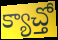
క్యాచ్తో